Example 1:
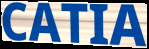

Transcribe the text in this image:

CATIA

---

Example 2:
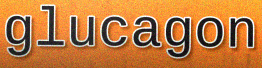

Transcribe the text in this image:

glucagon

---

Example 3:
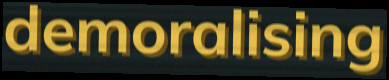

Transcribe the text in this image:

demoralising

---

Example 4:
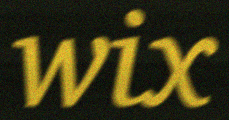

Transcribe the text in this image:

wix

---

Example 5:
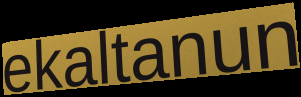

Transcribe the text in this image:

ekaltanun